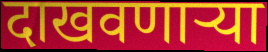
दाखवणाऱ्या